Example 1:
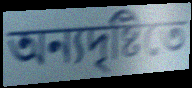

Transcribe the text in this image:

অন্যদৃষ্টিতে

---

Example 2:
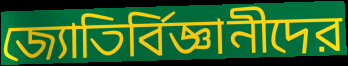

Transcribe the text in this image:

জ্যোতির্বিজ্ঞানীদের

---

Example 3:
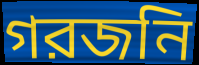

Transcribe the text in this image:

গরজনি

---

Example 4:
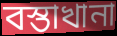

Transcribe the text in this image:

বস্তাখানা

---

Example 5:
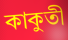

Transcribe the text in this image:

কাকুতী